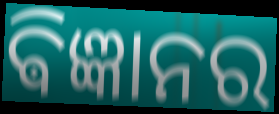
ଵିଜ୍ଞାନର